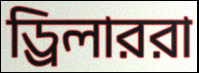
ড্রিলাররা